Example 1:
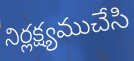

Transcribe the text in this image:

నిర్లక్ష్యముచేసి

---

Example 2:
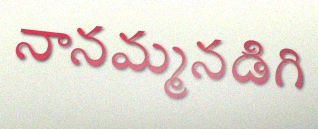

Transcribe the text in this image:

నానమ్మనడిగి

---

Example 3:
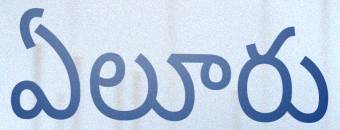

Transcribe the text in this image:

ఏలూరు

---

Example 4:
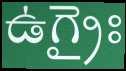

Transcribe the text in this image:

ఉగ్రైః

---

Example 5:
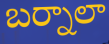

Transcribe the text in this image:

బర్నాలా